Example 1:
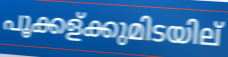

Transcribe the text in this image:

പൂക്കള്ക്കുമിടയില്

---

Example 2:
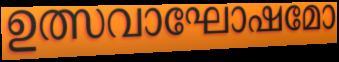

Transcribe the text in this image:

ഉത്സവാഘോഷമോ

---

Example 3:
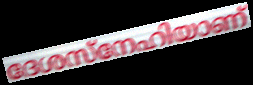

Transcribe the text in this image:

ദേശസ്നേഹിയാണ്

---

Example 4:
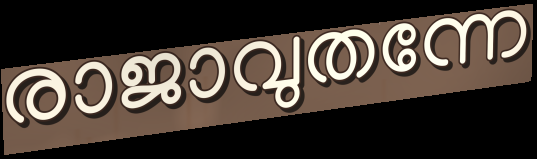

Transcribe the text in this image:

രാജാവുതന്നേ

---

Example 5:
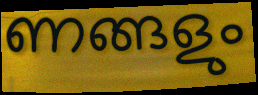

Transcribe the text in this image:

ണങ്ങളും